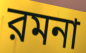
রমনা